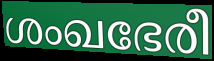
ശംഖഭേരീ